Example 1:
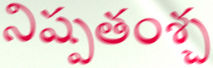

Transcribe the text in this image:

నిష్పతంశ్చ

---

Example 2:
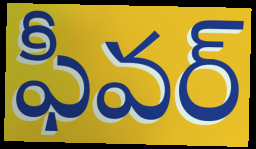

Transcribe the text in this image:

ఫీవర్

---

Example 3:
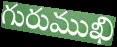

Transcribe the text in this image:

గురుముఖి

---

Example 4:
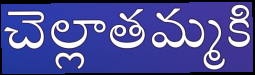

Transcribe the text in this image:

చెల్లాతమ్మకి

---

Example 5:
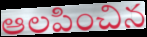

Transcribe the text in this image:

ఆలపించిన